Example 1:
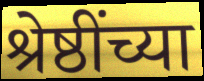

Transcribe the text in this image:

श्रेष्ठींच्या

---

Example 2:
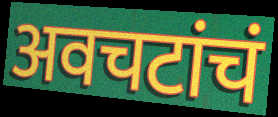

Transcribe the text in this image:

अवचटांचं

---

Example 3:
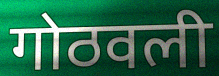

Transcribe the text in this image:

गोठवली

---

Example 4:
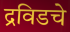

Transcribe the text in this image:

द्रविडचे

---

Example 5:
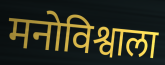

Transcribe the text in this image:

मनोविश्वाला